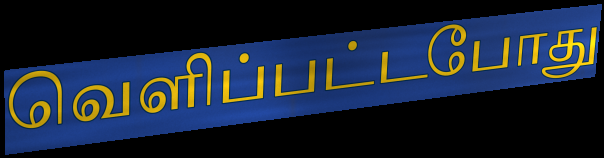
வெளிப்பட்டபோது